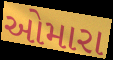
ઓમારા